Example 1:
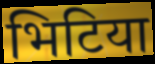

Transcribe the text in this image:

भिटिया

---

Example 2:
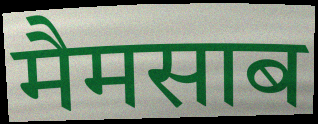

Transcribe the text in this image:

मैमसाब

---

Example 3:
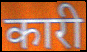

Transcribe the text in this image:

कारी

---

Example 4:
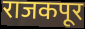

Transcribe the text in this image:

राजकपूर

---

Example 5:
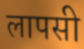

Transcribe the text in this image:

लापसी